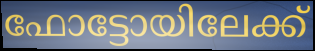
ഫോട്ടോയിലേക്ക്